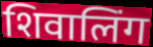
शिवालिंग